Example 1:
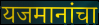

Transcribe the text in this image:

यजमानांचा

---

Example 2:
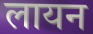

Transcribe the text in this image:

लायन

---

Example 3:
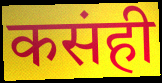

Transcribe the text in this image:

कसंही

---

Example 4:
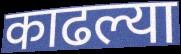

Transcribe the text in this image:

काढल्या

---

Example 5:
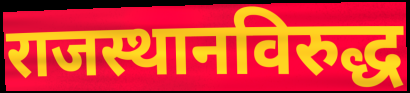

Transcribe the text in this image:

राजस्थानविरुद्ध